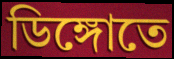
ডিঙ্গোতে